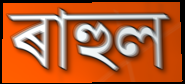
ৰাহুল